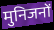
मुनिजनों